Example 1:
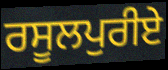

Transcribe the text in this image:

ਰਸੂਲਪੁਰੀਏ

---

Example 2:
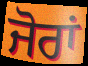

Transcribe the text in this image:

ਜੋਰਾਂ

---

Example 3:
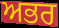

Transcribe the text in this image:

ਅਭਰ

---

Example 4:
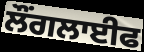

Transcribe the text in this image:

ਲੌਂਗਲਾਈਫ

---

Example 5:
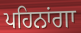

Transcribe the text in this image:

ਪਹਿਨਾਂਗਾ